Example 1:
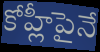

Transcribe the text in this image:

కోహ్లీపైనే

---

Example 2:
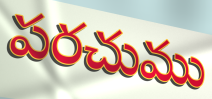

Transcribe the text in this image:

పరచుము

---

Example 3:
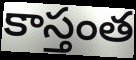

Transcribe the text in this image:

కాస్తంత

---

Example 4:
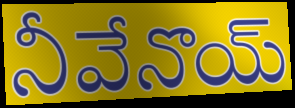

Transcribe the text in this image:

నీవేనొయ్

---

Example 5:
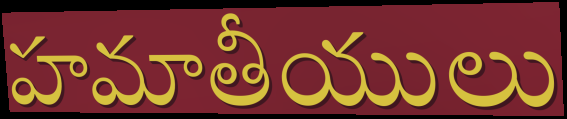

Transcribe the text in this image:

హమాతీయులు